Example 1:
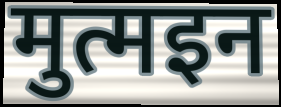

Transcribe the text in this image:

मुत्मइन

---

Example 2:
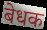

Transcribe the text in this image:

बेधक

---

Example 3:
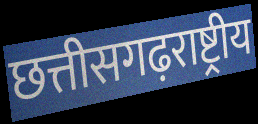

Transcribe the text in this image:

छत्तीसगढ़राष्ट्रीय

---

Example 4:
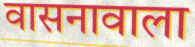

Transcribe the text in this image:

वासनावाला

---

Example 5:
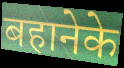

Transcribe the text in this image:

बहानेके